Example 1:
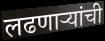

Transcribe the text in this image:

लढणाऱ्यांची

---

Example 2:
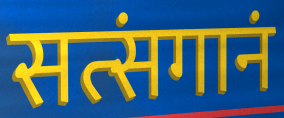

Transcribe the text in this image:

सत्संगानं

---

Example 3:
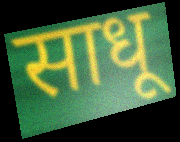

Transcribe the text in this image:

साधू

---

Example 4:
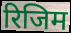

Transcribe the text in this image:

रिजिम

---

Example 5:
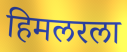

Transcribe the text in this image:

हिमलरला